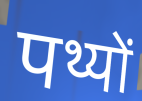
पथ्यों